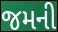
જમની